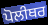
ਪੋਲੀਥਰ